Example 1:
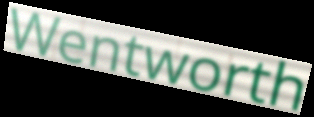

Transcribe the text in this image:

Wentworth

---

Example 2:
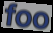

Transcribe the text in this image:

foo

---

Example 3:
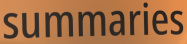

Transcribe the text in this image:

summaries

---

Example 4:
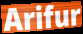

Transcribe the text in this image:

Arifur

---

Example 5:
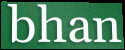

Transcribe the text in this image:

bhan